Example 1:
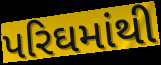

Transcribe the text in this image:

પરિઘમાંથી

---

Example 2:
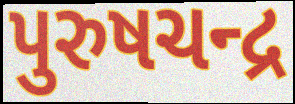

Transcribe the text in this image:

પુરુષચન્દ્ર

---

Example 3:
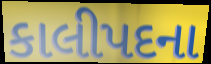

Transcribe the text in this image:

કાલીપદના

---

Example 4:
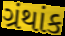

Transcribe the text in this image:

ગ્રંથાંક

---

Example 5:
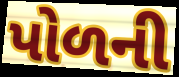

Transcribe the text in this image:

પોળની